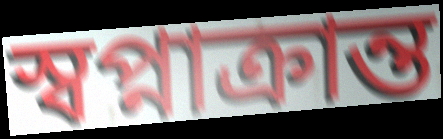
স্বপ্নাক্রান্ত